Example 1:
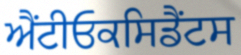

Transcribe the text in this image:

ਐਂਟੀਓਕਸਿਡੈਂਟਸ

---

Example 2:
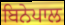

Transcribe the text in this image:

ਬਿਨੇਪਾਲ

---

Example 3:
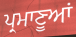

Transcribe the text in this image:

ਪ੍ਰਮਾਣੂਆਂ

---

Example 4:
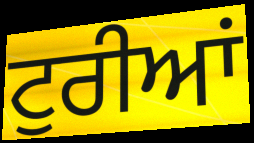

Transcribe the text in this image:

ਟੁਰੀਆਂ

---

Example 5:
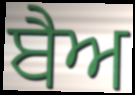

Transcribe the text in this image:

ਬੈਅ